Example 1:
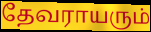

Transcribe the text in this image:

தேவராயரும்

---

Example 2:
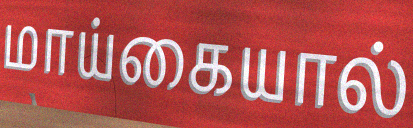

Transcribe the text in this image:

மாய்கையால்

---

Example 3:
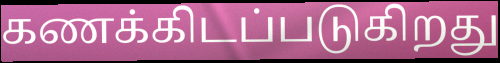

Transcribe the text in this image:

கணக்கிடப்படுகிறது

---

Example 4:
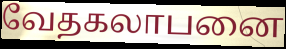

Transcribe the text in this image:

வேதகலாபனை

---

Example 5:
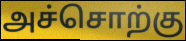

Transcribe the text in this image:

அச்சொற்கு